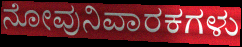
ನೋವುನಿವಾರಕಗಳು